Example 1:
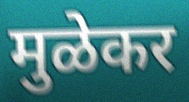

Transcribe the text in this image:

मुळेकर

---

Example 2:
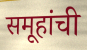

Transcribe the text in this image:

समूहांची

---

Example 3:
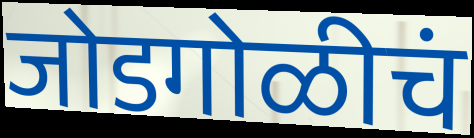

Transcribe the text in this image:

जोडगोळीचं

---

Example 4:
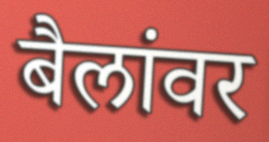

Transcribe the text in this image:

बैलांवर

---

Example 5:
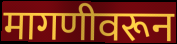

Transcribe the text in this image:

मागणीवरून